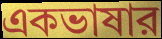
একভাষার